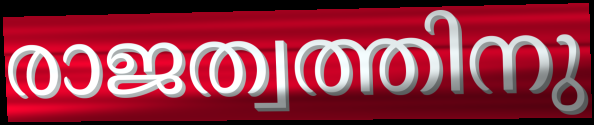
രാജത്വത്തിനു